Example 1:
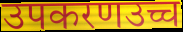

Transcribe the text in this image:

उपकरणउच्च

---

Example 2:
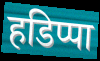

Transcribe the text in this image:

हडिप्पा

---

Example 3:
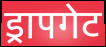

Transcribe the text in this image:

ड्रापगेट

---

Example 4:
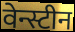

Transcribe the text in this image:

वेन्स्टीन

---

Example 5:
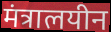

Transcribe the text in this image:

मंत्रालयीन